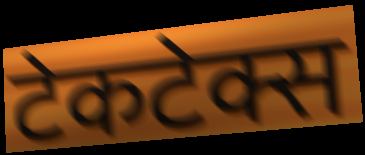
टेकटेक्स